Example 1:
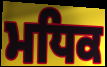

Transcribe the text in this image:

ਮਧਿਕ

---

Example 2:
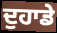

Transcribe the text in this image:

ਦੁਹਾਡੇ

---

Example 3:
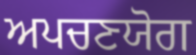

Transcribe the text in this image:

ਅਪਚਣਯੋਗ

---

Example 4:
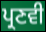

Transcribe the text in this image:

ਪ੍ਰਣਵੀ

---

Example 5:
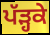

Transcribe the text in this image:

ਪੱੜ੍ਹਕੇ